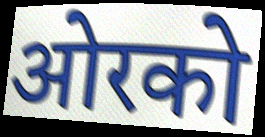
ओरको